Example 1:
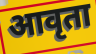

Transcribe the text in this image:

आवृता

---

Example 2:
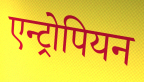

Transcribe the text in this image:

एन्ट्रोपियन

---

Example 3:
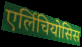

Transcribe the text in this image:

एर्लिचियोसिस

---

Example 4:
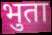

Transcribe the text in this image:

भुता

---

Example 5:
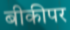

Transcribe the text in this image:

बीकीपर